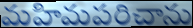
మహిమపరిచాను